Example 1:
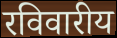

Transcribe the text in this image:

रविवारीय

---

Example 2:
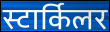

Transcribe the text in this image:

स्टार्किलर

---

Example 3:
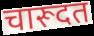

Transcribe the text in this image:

चारूदत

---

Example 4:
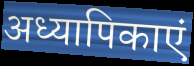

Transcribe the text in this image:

अध्यापिकाएं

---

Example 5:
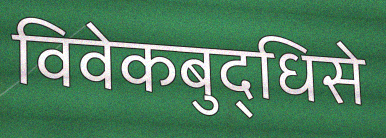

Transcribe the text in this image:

विवेकबुद्धिसे